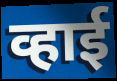
व्हाई